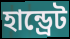
হান্ড্রেট